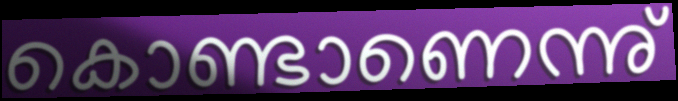
കൊണ്ടാണെന്നു്